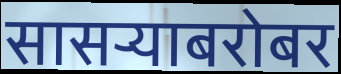
सासऱ्याबरोबर